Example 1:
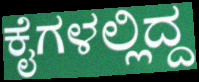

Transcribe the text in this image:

ಕೈಗಳಲ್ಲಿದ್ದ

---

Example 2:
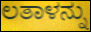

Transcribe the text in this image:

ಲತಾಳನ್ನು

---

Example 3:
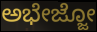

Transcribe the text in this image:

ಅಭೇಜ್ಜೋ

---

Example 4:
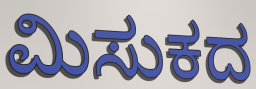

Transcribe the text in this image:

ಮಿಸುಕದ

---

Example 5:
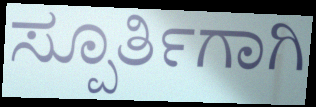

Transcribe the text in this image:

ಸ್ಪೂರ್ತಿಗಾಗಿ